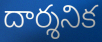
దార్శనిక